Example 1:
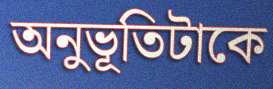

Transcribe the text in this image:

অনুভূতিটাকে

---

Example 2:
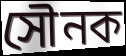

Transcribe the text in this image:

সৌনক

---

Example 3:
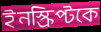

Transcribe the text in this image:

ইনস্ক্রিপ্টকে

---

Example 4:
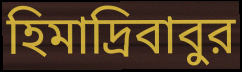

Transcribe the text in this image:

হিমাদ্রিবাবুর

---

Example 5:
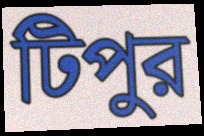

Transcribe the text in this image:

টিপুর